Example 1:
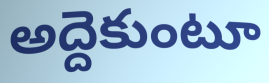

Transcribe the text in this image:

అద్దెకుంటూ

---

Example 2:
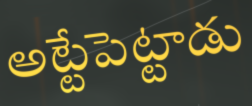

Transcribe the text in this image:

అట్టేపెట్టాడు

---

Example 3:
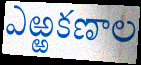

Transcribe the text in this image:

ఎఱ్ఱకణాల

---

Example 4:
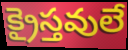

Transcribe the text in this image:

క్రైస్తవులే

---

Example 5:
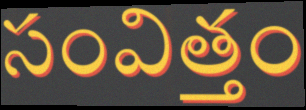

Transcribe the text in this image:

సంవిత్తం